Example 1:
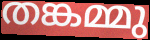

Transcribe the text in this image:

തങ്കമ്മു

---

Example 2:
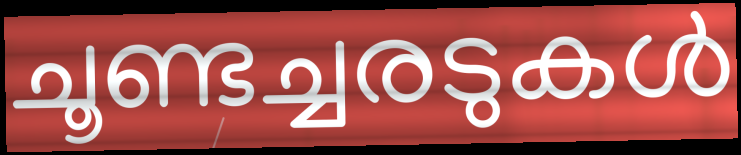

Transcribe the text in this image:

ചൂണ്ടച്ചരടുകൾ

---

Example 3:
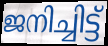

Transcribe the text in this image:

ജനിച്ചിട്ട്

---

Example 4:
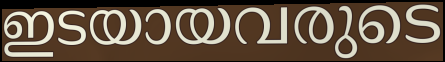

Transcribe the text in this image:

ഇടയായവരുടെ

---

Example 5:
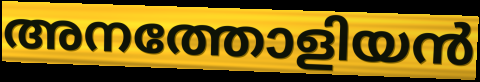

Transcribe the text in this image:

അനത്തോളിയൻ